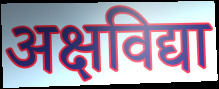
अक्षविद्या